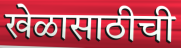
खेळासाठीची